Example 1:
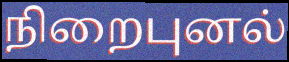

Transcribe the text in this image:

நிறைபுனல்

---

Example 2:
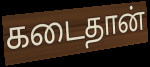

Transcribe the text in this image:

கடைதான்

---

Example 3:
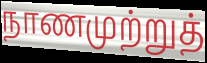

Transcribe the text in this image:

நாணமுற்றுத்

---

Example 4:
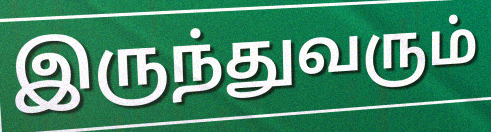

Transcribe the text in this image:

இருந்துவரும்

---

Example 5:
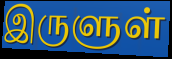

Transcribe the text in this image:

இருளுள்